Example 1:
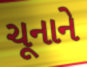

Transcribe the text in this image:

ચૂનાને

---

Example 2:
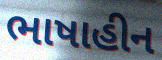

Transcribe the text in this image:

ભાષાહીન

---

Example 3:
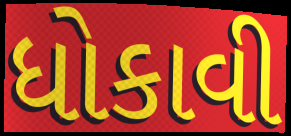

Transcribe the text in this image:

ધોકાવી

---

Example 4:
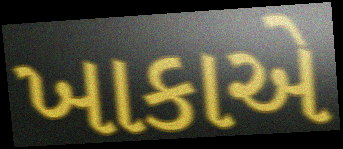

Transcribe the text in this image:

ખાકાએ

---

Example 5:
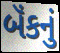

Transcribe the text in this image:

બૅંકનું